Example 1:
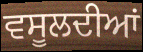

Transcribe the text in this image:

ਵਸੂਲਦੀਆਂ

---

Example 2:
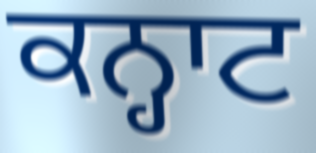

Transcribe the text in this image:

ਕਨ੍ਹਾਟ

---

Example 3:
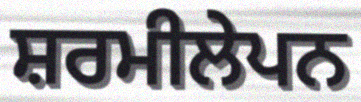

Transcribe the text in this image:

ਸ਼ਰਮੀਲੇਪਨ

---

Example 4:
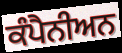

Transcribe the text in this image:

ਕੰਪੈਨੀਅਨ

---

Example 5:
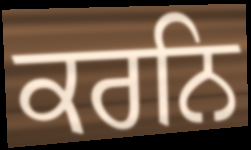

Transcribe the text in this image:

ਕਰਨਿ